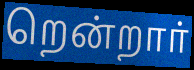
றென்றார்